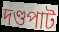
দণ্ডপাট